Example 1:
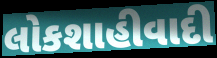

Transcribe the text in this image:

લોકશાહીવાદી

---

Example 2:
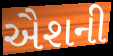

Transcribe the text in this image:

ઐશની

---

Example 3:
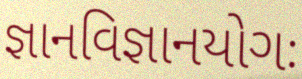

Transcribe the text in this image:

જ્ઞાનવિજ્ઞાનયોગઃ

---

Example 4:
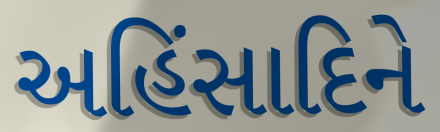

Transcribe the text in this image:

અહિંસાદિને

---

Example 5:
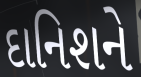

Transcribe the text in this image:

દાનિશને